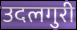
उदलगुरी